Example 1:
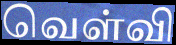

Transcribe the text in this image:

வெள்வி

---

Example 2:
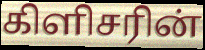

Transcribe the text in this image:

கிளிசரின்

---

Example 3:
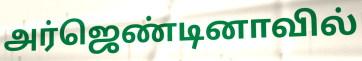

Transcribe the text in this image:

அர்ஜெண்டினாவில்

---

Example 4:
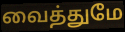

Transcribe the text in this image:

வைத்துமே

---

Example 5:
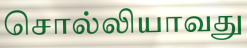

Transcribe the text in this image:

சொல்லியாவது